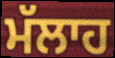
ਮੱਲਾਹ